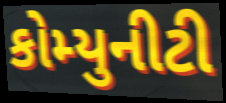
કોમ્યુનીટી